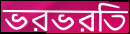
ভরভরতি